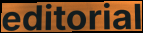
editorial